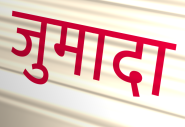
जुमादा